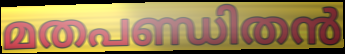
മതപണ്ഡിതൻ